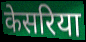
केसरिया